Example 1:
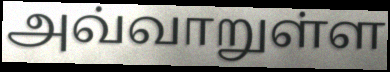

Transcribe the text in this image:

அவ்வாறுள்ள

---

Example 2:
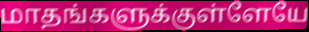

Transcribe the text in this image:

மாதங்களுக்குள்ளேயே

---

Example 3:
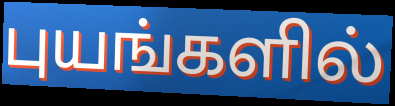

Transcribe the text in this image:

புயங்களில்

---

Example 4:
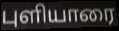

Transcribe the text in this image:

புளியாரை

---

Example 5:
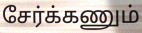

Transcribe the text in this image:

சேர்க்கணும்